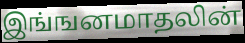
இங்ஙனமாதலின்